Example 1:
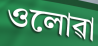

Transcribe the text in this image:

ওলোৱা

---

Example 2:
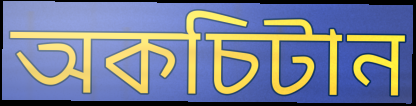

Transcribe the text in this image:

অকচিটান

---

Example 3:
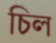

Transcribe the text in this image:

চিল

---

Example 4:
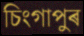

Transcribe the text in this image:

চিংগাপুৰ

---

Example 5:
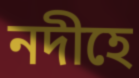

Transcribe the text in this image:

নদীহে